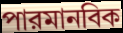
পারমানবিক